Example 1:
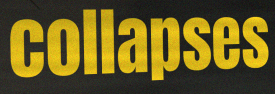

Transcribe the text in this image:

collapses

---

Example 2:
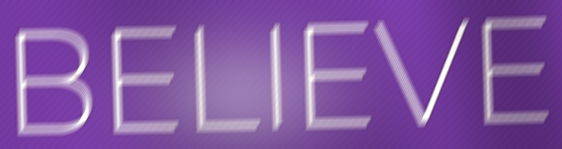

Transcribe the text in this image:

BELIEVE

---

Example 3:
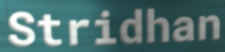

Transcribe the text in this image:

Stridhan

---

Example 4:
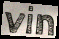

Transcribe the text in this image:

vin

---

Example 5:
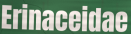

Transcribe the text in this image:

Erinaceidae